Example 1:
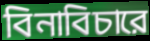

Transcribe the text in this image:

বিনাবিচারে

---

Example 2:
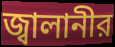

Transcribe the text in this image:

জ্বালানীর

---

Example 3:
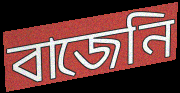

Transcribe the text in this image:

বাজেনি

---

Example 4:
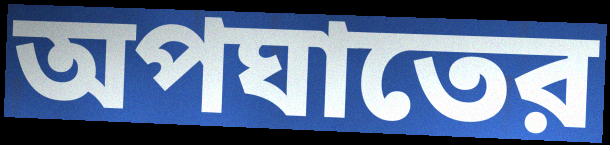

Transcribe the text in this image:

অপঘাতের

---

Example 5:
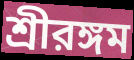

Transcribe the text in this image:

শ্রীরঙ্গম